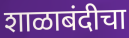
शाळाबंदीचा